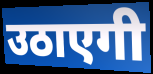
उठाएगी